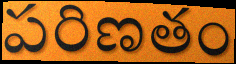
పరిణతం